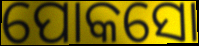
ପୋକସୋ